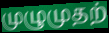
முழுமுதற்